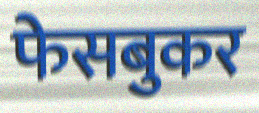
फेसबुकर